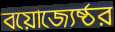
বয়োজ্যেষ্ঠর